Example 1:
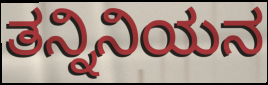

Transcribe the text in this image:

ತನ್ನಿನಿಯನ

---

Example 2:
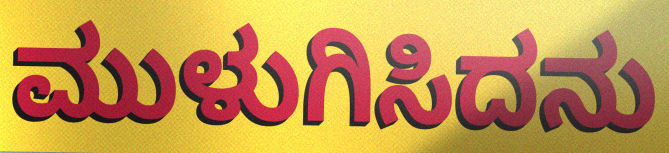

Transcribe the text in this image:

ಮುಳುಗಿಸಿದನು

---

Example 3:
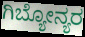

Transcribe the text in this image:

ಗಿಬ್ಯೋನ್ಯರ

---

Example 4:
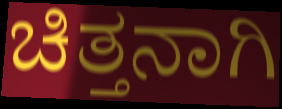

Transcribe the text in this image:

ಚಿತ್ತನಾಗಿ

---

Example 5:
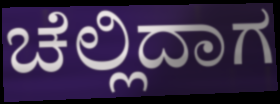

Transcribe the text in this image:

ಚೆಲ್ಲಿದಾಗ